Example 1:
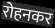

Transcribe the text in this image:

रोहनकर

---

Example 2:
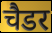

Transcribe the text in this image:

चैडर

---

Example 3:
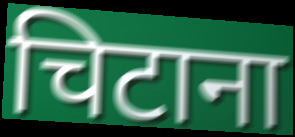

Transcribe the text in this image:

चिटाना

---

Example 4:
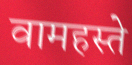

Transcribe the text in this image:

वामहस्ते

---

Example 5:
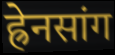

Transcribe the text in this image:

ह्रेनसांग